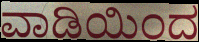
ವಾಡಿಯಿಂದ